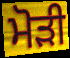
ਮੋੜੀ